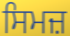
ਸਿਮਜ਼